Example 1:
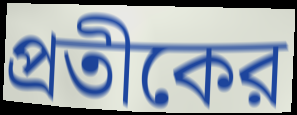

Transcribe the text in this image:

প্রতীকের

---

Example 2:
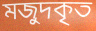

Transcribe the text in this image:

মজুদকৃত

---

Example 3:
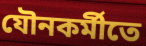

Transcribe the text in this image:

যৌনকর্মীতে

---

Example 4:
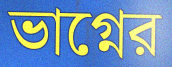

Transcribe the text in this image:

ভাগ্নের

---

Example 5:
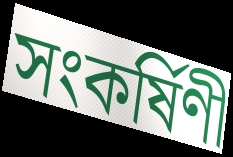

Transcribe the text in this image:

সংকর্ষিণী